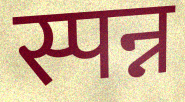
स्पन्न